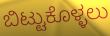
ಬಿಟ್ಟುಕೊಳ್ಳಲು